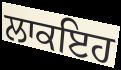
ਲਾਕਇਹ